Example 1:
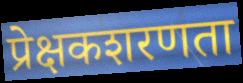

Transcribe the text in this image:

प्रेक्षकशरणता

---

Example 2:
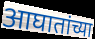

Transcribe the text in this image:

आघातांच्या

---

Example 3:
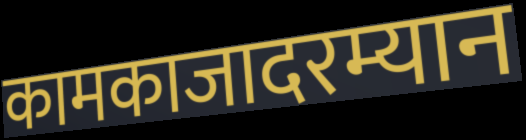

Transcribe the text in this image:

कामकाजादरम्यान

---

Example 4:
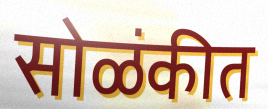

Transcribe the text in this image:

सोळंकीत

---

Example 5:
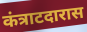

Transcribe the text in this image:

कंत्राटदारास